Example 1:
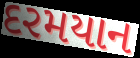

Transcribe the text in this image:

દરમયાન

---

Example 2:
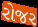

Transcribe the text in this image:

રોજર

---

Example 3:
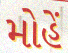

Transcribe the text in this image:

મોહેં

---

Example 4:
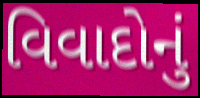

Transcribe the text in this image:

વિવાદોનું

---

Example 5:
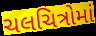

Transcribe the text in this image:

ચલચિત્રોમાં